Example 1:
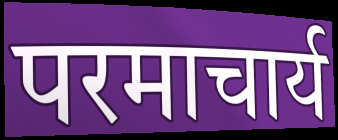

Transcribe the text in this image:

परमाचार्य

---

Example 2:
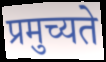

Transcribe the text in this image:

प्रमुच्यते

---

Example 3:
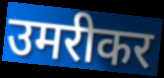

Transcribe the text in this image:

उमरीकर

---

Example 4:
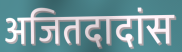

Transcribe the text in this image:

अजितदादांस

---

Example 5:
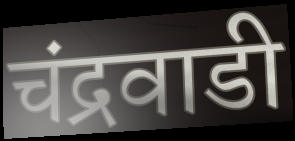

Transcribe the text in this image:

चंद्रवाडी